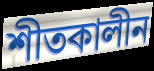
শীতকালীন